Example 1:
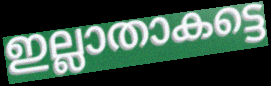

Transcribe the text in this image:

ഇല്ലാതാകട്ടെ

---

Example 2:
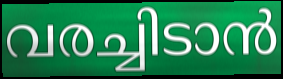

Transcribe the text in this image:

വരച്ചിടാൻ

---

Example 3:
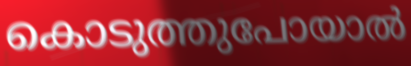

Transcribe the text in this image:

കൊടുത്തുപോയാൽ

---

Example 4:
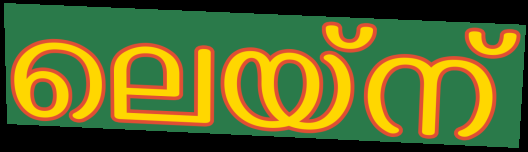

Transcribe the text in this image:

ലെയ്ന്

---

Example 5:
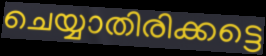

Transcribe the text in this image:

ചെയ്യാതിരിക്കട്ടെ